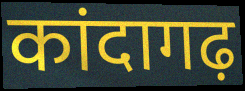
कांदागढ़